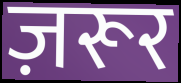
ज़रूर